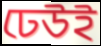
ঢেউই